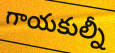
గాయకుల్నీ